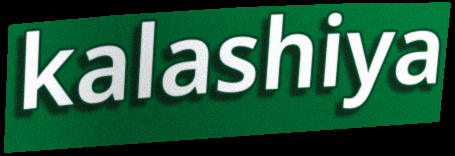
kalashiya